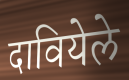
दावियेले